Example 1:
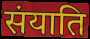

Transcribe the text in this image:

संयाति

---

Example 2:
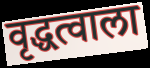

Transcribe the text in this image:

वृद्धत्वाला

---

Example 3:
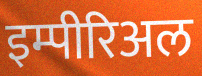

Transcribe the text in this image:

इम्पीरिअल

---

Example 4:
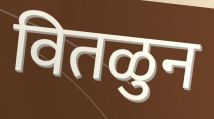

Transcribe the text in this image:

वितळुन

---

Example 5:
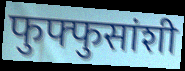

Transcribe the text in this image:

फुफ्फुसांशी